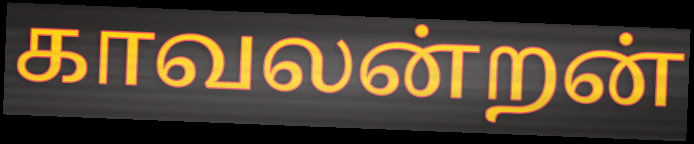
காவலன்றன்